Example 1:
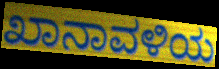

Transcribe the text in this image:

ಖಾನಾವಳಿಯ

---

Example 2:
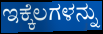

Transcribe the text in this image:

ಇಕ್ಕೆಲಗಳನ್ನು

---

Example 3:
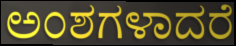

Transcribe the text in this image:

ಅಂಶಗಳಾದರೆ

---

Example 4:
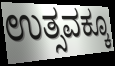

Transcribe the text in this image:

ಉತ್ಸವಕ್ಕೂ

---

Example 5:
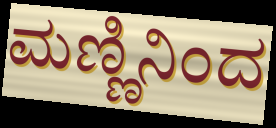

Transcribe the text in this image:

ಮಣ್ಣಿನಿಂದ